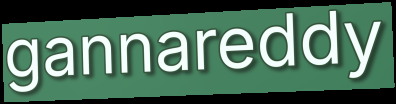
gannareddy